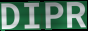
DIPR